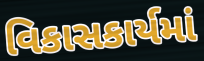
વિકાસકાર્યમાં